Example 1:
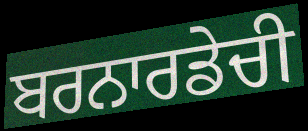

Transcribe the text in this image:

ਬਰਨਾਰਡੇਚੀ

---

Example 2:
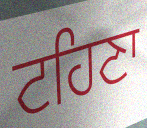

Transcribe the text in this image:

ਟਹਿਣਾ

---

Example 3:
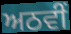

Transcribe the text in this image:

ਅਠਵੀਂ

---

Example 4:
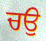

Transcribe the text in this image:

ਚਉ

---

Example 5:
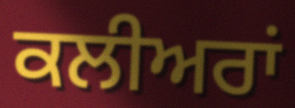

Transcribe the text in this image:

ਕਲੀਅਰਾਂ